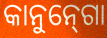
କାନୁନ୍‍ଗୋ